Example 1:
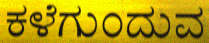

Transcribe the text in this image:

ಕಳೆಗುಂದುವ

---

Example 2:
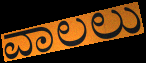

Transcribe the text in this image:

ವಾಲಲು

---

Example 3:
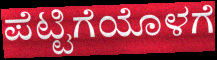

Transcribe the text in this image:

ಪೆಟ್ಟಿಗೆಯೊಳಗೆ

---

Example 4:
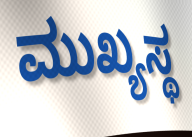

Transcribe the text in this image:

ಮುಖ್ಯಸ್ಥ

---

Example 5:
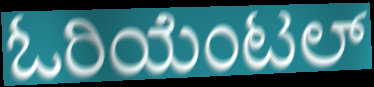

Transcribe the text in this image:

ಓರಿಯೆಂಟಲ್